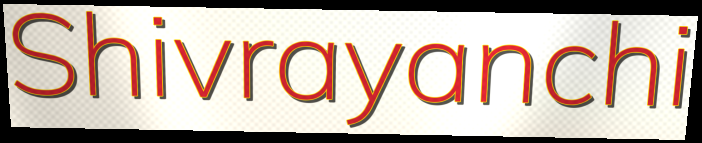
Shivrayanchi